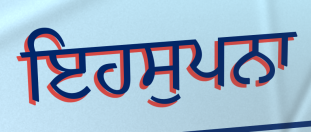
ਇਹਸੁਪਨਾ